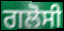
ਗਲੋਸੀ